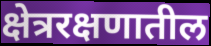
क्षेत्ररक्षणातील